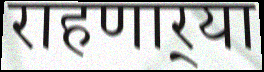
राहणार्या